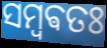
ସମ୍ବଵତଃ